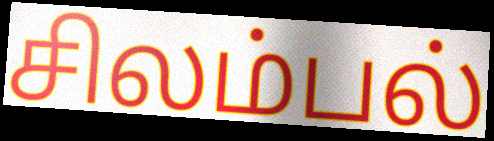
சிலம்பல்